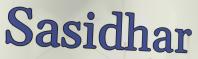
Sasidhar